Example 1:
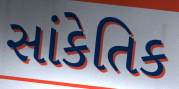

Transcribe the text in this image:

સાંકેતિક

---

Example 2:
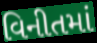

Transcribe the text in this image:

વિનીતમાં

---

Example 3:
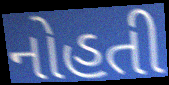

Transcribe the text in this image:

નોહતી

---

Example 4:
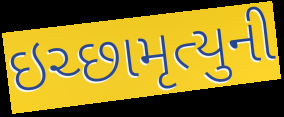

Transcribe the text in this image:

ઇચ્છામૃત્યુની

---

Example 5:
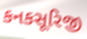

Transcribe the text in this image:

કનકસૂરિજી